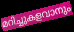
മറിച്ചുകളവാനും